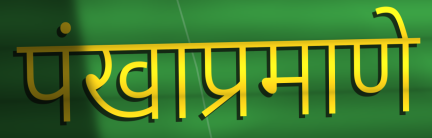
पंखाप्रमाणे